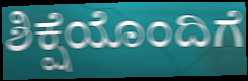
ಶಿಕ್ಷೆಯೊಂದಿಗೆ